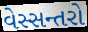
વેસ્સન્તરો